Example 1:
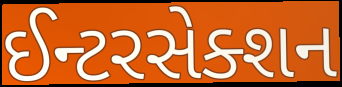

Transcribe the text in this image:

ઈન્ટરસેક્શન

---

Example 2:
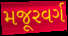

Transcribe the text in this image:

મજૂરવર્ગ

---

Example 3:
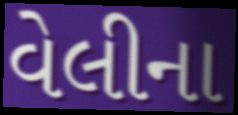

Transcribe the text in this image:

વેલીના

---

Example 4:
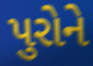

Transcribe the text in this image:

પુરોને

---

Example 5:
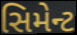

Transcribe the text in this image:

સિમેન્ટ